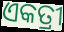
ଏକତ୍ରୀ